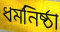
ধর্মনিষ্ঠা